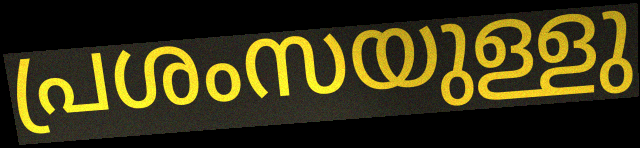
പ്രശംസയുള്ളു